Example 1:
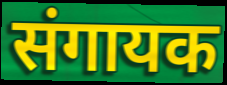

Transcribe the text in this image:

संगायक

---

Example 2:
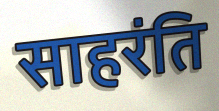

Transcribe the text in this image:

साहरंति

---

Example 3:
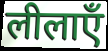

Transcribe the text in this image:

लीलाएँ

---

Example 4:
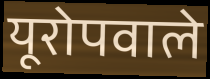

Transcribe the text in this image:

यूरोपवाले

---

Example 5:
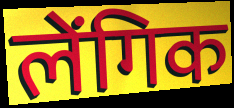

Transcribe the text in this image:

लेंगिक